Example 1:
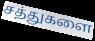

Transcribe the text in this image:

சத்துகளை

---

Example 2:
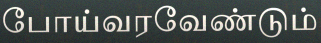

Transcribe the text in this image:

போய்வரவேண்டும்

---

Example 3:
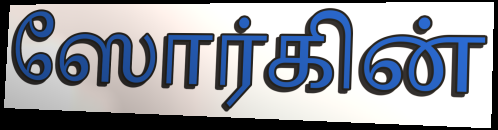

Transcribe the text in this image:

ஸோர்கின்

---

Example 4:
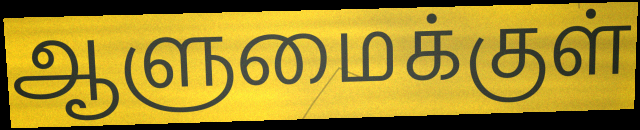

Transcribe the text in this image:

ஆளுமைக்குள்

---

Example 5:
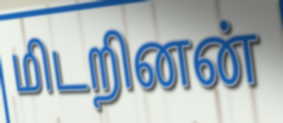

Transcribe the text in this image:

மிடறினன்